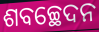
ଶବଚ୍ଛେଦନ